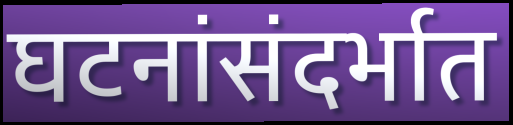
घटनांसंदर्भात